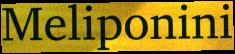
Meliponini